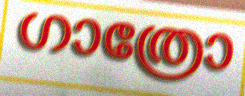
ഗാത്രോ